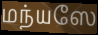
மந்யஸே